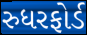
રુધરફોર્ડ